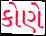
કોણે